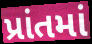
પ્રાંતમાં